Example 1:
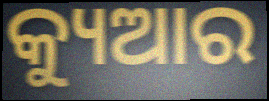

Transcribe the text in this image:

କ୍ୟୁଆର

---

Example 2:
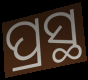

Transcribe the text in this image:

ପ୍ରସ୍ଥ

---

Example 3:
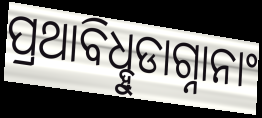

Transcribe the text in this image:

ପ୍ରଥାବିଧ୍ହୁଡାଗ୍ନାନାଂ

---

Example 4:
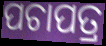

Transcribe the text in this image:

ପଚାପତ୍ର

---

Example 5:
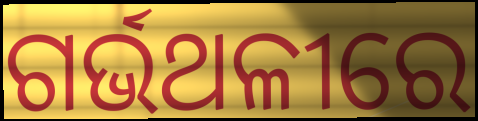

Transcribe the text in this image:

ଗର୍ଭଥଳୀରେ